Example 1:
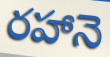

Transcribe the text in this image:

రహానె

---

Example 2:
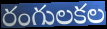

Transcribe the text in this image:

రంగులకల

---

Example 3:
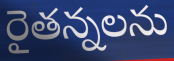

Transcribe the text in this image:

రైతన్నలను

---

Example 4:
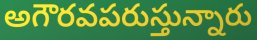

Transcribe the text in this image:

అగౌరవపరుస్తున్నారు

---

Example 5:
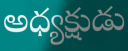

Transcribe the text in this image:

అధ్యక్షుడు